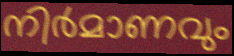
നിർമാണവും